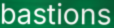
bastions